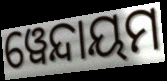
ୱେନ୍ଦାୟମ